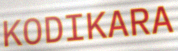
KODIKARA